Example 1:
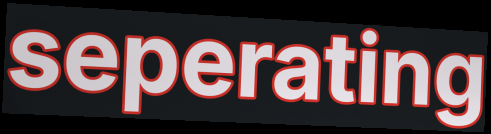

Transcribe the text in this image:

seperating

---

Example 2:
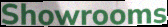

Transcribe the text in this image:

Showrooms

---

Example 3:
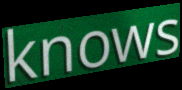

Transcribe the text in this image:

knows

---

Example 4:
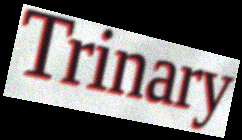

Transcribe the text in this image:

Trinary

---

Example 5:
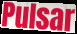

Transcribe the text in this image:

Pulsar